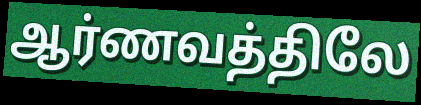
ஆர்ணவத்திலே